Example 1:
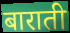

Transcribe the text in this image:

बाराती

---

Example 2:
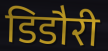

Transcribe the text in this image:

डिडौरी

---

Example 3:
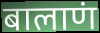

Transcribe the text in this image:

बालाणं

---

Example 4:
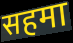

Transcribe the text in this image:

सहमा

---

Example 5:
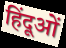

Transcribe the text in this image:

हिंदूओं